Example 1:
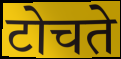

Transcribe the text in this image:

टोचते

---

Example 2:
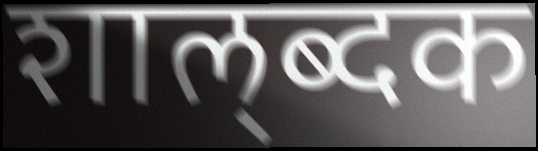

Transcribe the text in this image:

शाल्ब्दक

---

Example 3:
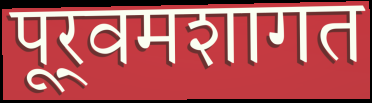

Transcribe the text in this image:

पूर्वमशागत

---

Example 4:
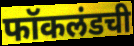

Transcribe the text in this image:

फॉकलंडची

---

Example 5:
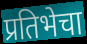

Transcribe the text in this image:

प्रतिभेचा